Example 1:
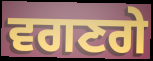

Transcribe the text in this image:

ਵਗਣਗੇ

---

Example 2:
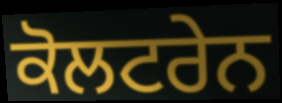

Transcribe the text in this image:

ਕੋਲਟਰੇਨ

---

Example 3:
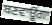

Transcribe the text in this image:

ਬਣਵਾਊਂਗਾ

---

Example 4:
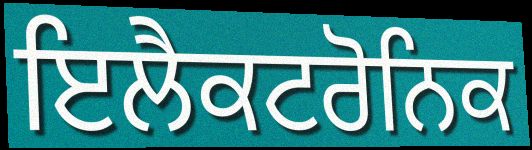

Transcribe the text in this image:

ਇਲੈਕਟਰੋਨਿਕ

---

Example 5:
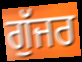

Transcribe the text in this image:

ਗੁੱਜਰ